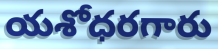
యశోధరగారు